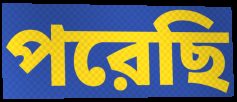
পরেছি